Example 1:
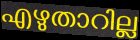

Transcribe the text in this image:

എഴുതാറില്ല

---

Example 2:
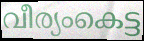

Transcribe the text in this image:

വീര്യംകെട്ട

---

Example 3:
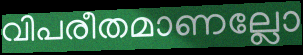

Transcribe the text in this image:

വിപരീതമാണല്ലോ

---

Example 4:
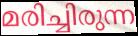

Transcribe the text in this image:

മരിച്ചിരുന്ന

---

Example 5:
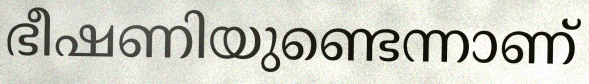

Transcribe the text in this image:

ഭീഷണിയുണ്ടെന്നാണ്